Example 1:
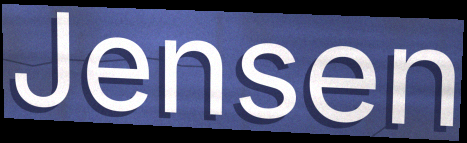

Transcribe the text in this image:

Jensen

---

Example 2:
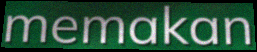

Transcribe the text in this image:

memakan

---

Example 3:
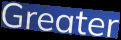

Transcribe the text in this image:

Greater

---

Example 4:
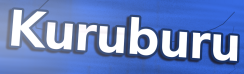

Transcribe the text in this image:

Kuruburu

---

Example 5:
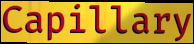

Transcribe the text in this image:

Capillary